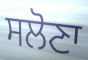
ਸਲੋਣਾ